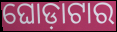
ଘୋଡ଼ାଟାର